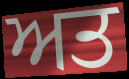
ਅਤ